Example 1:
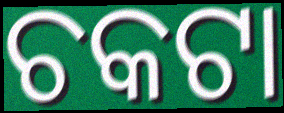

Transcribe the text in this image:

ଚକଟା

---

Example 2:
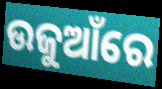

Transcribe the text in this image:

ଉଜୁଆଁରେ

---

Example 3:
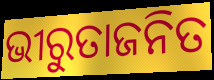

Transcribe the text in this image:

ଭୀରୁତାଜନିତ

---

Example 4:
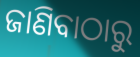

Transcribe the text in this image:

ଜାଣିବାଠାରୁ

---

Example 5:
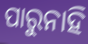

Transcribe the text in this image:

ପାରୁନାହି